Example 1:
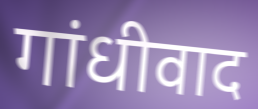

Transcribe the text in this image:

गांधीवाद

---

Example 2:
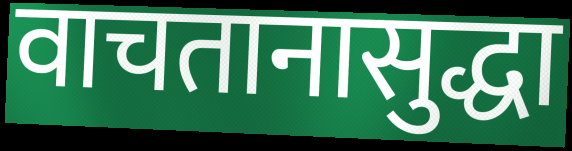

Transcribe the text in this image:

वाचतानासुद्धा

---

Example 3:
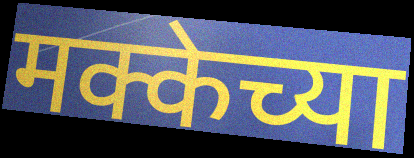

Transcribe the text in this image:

मक्केच्या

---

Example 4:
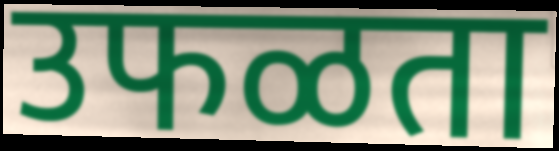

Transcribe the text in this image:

उफळता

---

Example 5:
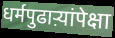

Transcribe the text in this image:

धर्मपुढाऱ्‍यांपेक्षा